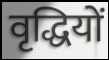
वृद्धियों